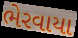
ભેરવાયા